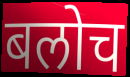
बलोच